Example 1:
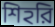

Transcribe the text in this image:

শিহরি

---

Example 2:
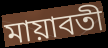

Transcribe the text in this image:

মায়াবতী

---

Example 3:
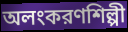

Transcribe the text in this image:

অলংকরণশিল্পী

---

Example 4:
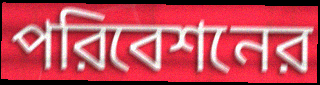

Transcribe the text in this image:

পরিবেশনের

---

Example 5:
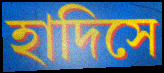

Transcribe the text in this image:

হাদিসে